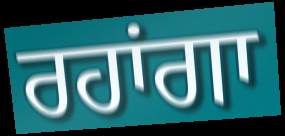
ਰਹਾਂਗਾ